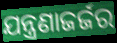
ଯନ୍ତ୍ରଣାଜର୍ଜର